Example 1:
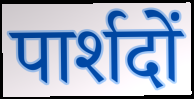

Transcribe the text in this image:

पार्शदों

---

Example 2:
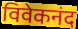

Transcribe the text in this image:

विवेकनंद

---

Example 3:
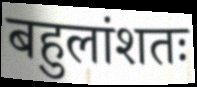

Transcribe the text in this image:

बहुलांशतः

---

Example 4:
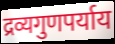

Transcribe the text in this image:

द्रव्यगुणपर्याय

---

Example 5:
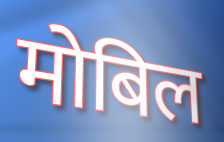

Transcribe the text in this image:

मोबिल